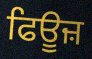
ਫਿਊਜ਼